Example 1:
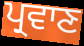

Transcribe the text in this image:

ਪ੍ਰਵਾਣ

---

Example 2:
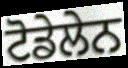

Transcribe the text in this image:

ਟੋਡੇਲੇਨ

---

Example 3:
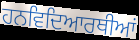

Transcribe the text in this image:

ਹਨਵਿਦਿਆਰਥੀਆਂ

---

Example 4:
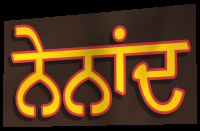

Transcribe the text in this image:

ਨੇਨਾਂਦ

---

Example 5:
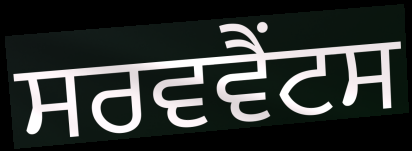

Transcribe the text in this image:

ਸਰਵਵੈਂਟਸ